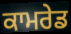
ਕਾਮਰੇਡ